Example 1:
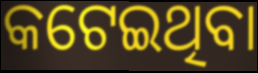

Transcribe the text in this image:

କଟେଇଥିବା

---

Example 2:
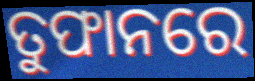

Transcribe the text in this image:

ତୁଫାନରେ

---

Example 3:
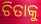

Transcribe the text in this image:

ଚିତାକୁ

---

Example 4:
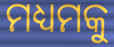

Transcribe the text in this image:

ମଧ୍ୟମକୁ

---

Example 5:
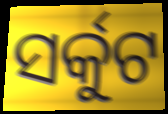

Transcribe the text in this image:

ସର୍କୁଟ